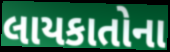
લાયકાતોના